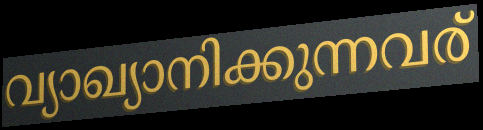
വ്യാഖ്യാനിക്കുന്നവര്